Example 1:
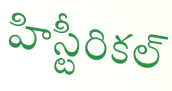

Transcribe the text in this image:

హిస్టీరికల్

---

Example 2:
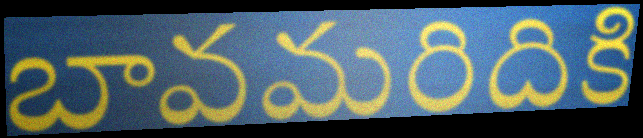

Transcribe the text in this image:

బావమరిదికి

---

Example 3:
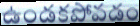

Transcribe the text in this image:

ఉండకపోవడం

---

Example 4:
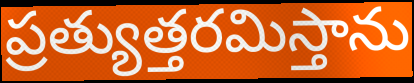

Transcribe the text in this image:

ప్రత్యుత్తరమిస్తాను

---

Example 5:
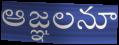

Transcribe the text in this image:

ఆజ్ఞలనూ